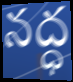
నద్ధ